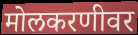
मोलकरणीवर